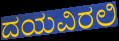
ದಯವಿರಲಿ